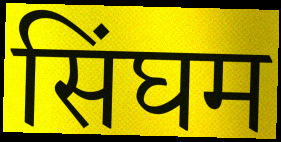
सिंघम